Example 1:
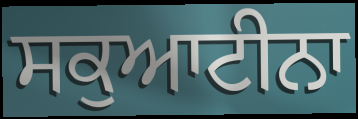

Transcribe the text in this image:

ਸਕੁਆਟੀਨਾ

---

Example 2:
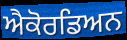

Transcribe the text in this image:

ਐਕੋਰਡਿਅਨ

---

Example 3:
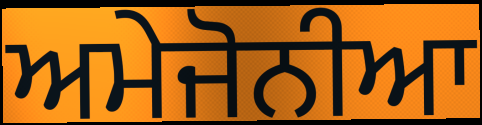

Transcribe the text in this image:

ਅਮੇਜੋਨੀਆ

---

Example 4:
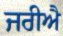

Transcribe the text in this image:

ਜਰੀਐ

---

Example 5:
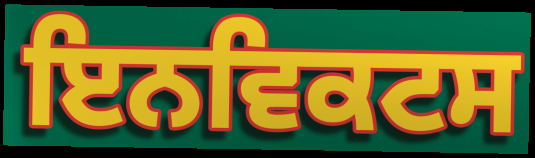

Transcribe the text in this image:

ਇਨਵਿਕਟਸ